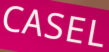
CASEL